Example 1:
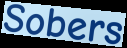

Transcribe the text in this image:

Sobers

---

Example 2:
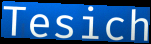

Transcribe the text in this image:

Tesich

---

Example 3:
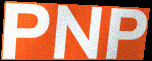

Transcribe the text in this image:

PNP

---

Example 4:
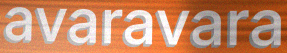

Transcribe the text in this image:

avaravara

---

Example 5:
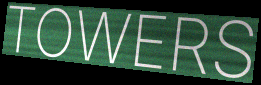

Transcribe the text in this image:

TOWERS